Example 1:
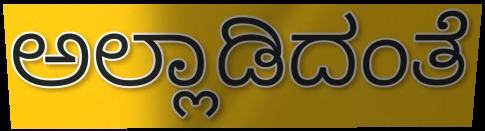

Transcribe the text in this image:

ಅಲ್ಲಾಡಿದಂತೆ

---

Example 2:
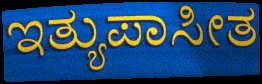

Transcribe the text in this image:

ಇತ್ಯುಪಾಸೀತ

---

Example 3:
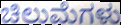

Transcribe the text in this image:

ಚಿಲುಮೆಗಳು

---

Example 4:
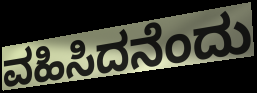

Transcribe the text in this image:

ವಹಿಸಿದನೆಂದು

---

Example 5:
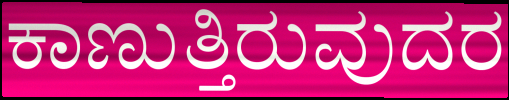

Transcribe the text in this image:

ಕಾಣುತ್ತಿರುವುದರ